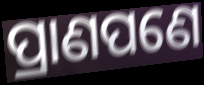
ପ୍ରାଣପଣେ